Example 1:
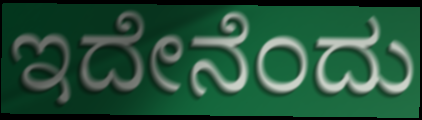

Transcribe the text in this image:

ಇದೇನೆಂದು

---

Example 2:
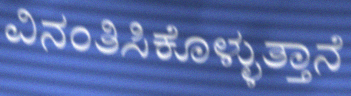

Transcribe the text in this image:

ವಿನಂತಿಸಿಕೊಳ್ಳುತ್ತಾನೆ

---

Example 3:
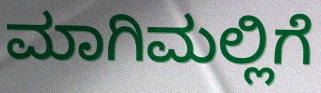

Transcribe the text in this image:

ಮಾಗಿಮಲ್ಲಿಗೆ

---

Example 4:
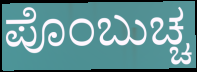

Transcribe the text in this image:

ಪೊಂಬುಚ್ಚ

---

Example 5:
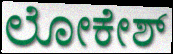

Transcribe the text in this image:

ಲೋಕೇಶ್